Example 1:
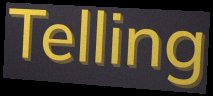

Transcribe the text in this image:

Telling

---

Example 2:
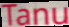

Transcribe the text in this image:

Tanu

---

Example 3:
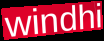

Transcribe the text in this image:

windhi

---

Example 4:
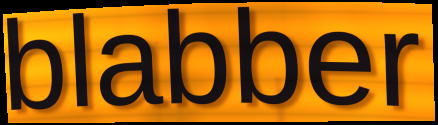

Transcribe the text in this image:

blabber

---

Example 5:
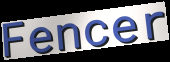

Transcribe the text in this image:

Fencer